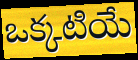
ఒక్కటియే